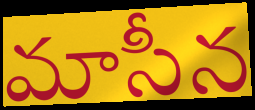
మాసీన